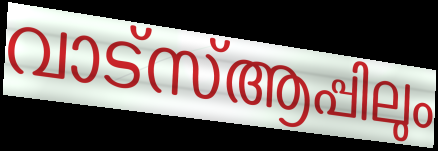
വാട്സ്ആപ്പിലും